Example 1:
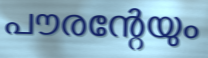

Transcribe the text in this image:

പൗരന്റേയും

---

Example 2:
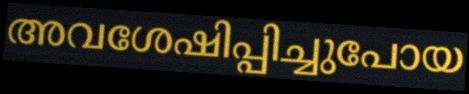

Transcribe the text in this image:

അവശേഷിപ്പിച്ചുപോയ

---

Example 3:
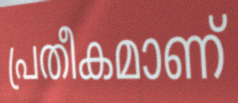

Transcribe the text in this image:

പ്രതീകമാണ്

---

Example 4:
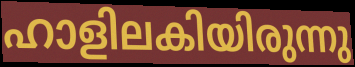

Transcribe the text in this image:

ഹാളിലകിയിരുന്നു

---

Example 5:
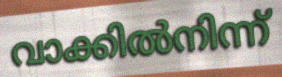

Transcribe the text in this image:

വാക്കിൽനിന്ന്